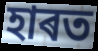
হাৰত